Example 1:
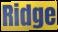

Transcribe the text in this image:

Ridge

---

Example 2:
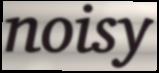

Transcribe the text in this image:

noisy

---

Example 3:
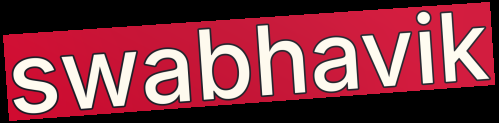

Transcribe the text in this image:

swabhavik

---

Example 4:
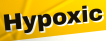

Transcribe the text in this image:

Hypoxic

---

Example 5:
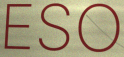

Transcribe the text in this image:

ESO